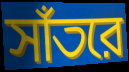
সাঁতরে